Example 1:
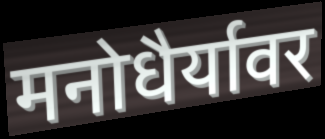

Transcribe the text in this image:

मनोधैर्यावर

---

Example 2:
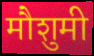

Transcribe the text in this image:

मौशुमी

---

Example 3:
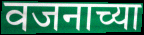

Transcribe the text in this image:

वजनाच्या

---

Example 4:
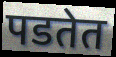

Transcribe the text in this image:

पडतेत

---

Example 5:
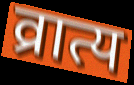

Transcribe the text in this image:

व्रात्य